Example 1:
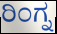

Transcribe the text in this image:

ರಿಂಗ್ನ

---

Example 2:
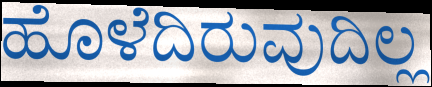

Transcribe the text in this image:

ಹೊಳೆದಿರುವುದಿಲ್ಲ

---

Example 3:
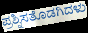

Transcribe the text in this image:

ಪ್ರಶ್ನಿಸತೊಡಗಿದಳು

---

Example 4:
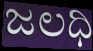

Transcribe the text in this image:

ಜಲಧಿ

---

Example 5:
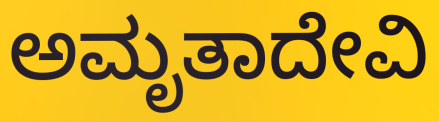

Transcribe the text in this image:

ಅಮೃತಾದೇವಿ